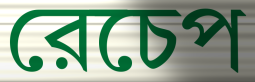
রেচেপ